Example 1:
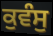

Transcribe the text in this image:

ਕੁਵੰਸੁ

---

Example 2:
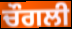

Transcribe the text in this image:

ਚੌਗਲੀ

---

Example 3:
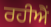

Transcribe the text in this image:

ਰਹੀਐਂ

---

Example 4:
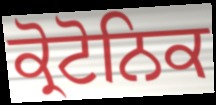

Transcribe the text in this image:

ਕ੍ਰੋਟੋਨਿਕ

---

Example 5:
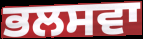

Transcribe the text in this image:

ਭਲਸਵਾ